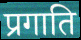
प्रगाति